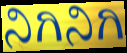
ನಿಗಿನಿಗಿ